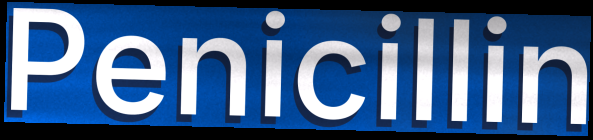
Penicillin